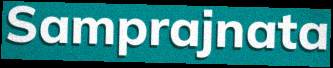
Samprajnata